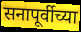
सनापूर्वीच्या